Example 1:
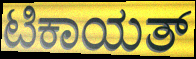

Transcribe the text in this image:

ಟಿಕಾಯತ್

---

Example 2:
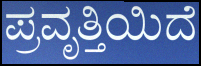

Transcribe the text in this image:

ಪ್ರವೃತ್ತಿಯಿದೆ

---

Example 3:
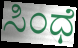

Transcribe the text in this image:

ಸಿಂಧೆ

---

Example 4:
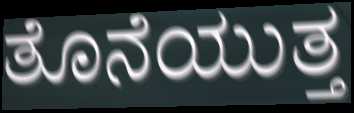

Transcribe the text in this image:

ತೊನೆಯುತ್ತ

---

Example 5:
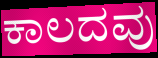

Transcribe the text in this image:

ಕಾಲದವು